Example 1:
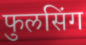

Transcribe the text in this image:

फुलसिंग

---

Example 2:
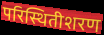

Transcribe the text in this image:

परिस्थितीशरण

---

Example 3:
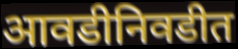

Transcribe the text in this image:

आवडीनिवडीत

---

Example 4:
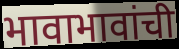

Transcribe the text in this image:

भावाभावांची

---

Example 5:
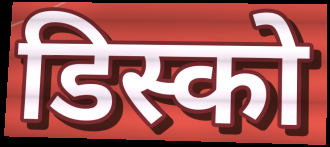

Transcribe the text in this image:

डिस्को